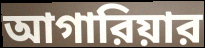
আগারিয়ার